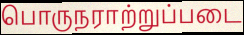
பொருநராற்றுப்படை